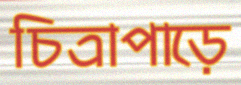
চিত্রাপাড়ে